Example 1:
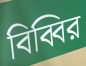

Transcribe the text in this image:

বিব্বির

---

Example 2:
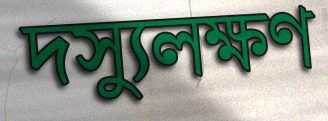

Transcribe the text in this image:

দস্যুলক্ষণ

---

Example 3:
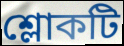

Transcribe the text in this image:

শ্লোকটি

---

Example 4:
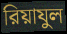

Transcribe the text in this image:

রিয়াযুল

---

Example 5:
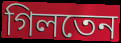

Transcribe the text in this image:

গিলতেন